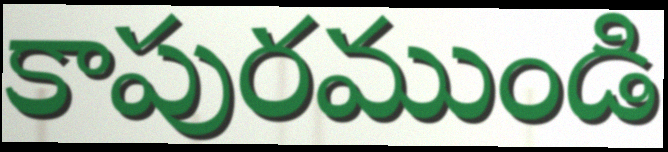
కాపురముండి